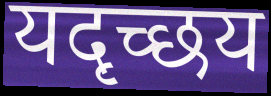
यदृच्छय